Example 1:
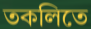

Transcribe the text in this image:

তকলিতে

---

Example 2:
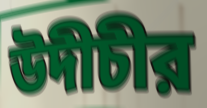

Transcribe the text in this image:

উদীচীর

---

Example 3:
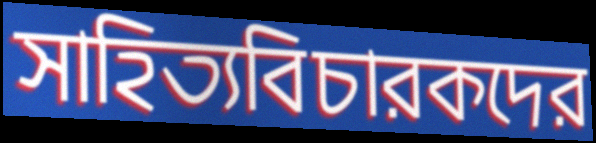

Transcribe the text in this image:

সাহিত্যবিচারকদের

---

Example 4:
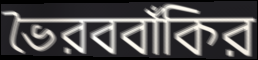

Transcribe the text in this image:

ভৈরববাঁকির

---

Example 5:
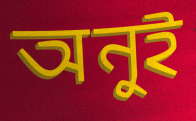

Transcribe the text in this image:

অনুই